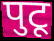
पुटू